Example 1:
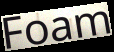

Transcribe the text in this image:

Foam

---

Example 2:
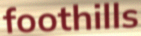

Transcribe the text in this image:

foothills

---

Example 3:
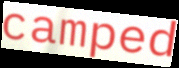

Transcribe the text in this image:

camped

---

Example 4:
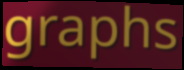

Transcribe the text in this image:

graphs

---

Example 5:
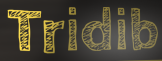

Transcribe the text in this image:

Tridib